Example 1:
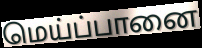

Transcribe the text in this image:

மெய்ப்பானை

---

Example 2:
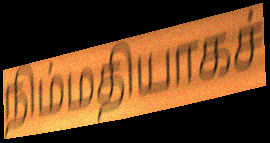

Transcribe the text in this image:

நிம்மதியாகச்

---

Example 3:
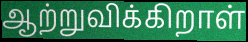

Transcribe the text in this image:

ஆற்றுவிக்கிறாள்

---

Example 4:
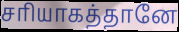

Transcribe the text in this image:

சரியாகத்தானே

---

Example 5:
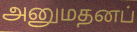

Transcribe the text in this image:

அனுமதனப்